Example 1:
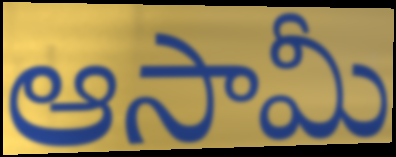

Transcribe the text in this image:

ఆసామీ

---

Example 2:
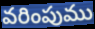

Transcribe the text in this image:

వరింపుము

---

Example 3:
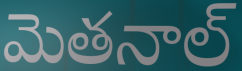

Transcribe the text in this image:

మెతనాల్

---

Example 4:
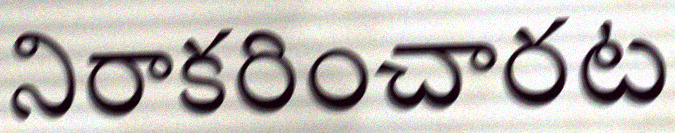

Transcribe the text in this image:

నిరాకరించారట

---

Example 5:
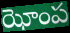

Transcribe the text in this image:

ఝోంప